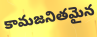
కామజనితమైన